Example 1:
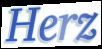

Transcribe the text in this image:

Herz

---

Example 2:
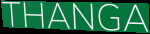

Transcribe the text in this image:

THANGA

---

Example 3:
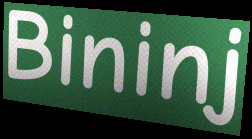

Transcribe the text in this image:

Bininj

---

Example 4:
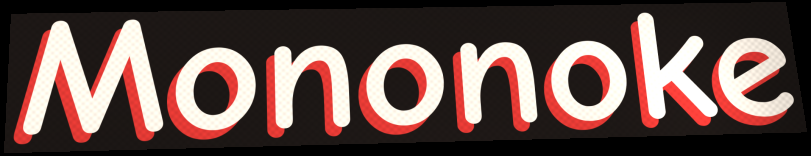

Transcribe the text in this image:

Mononoke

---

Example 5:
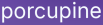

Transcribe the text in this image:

porcupine